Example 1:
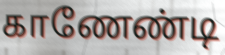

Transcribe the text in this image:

காணேண்டி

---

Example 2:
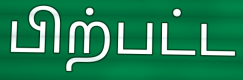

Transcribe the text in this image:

பிற்பட்ட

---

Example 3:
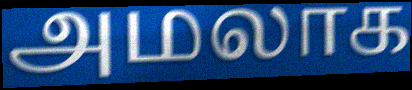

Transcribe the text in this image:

அமலாக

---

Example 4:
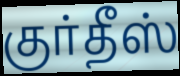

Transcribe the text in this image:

குர்தீஸ்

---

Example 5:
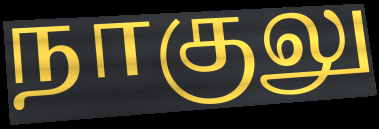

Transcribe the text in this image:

நாகுலு